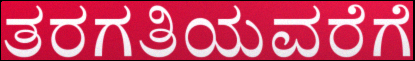
ತರಗತಿಯವರೆಗೆ